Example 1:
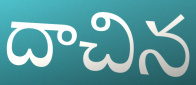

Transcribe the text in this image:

దాచిన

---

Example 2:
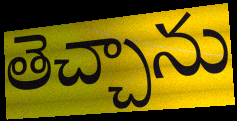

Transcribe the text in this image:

తెచ్చాను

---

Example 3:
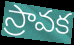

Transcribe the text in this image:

స్రావక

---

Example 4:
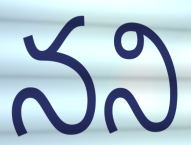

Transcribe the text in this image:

నని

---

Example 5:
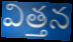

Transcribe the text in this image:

విత్తన